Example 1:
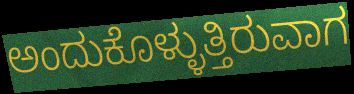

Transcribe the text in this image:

ಅಂದುಕೊಳ್ಳುತ್ತಿರುವಾಗ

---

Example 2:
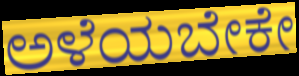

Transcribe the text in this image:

ಅಳೆಯಬೇಕೇ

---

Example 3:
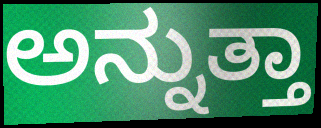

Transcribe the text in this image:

ಅನ್ನುತ್ತಾ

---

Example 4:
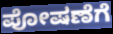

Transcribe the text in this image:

ಪೋಷಣೆಗೆ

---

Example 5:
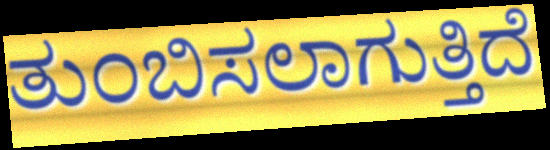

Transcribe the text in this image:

ತುಂಬಿಸಲಾಗುತ್ತಿದೆ